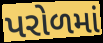
પરોળમાં